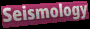
Seismology